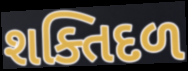
શક્તિદળ